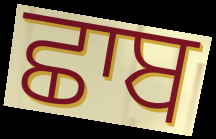
ਛਾਬ